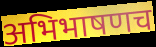
अभिभाषणच